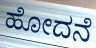
ಹೋದನೆ